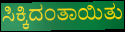
ಸಿಕ್ಕಿದಂತಾಯಿತು